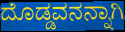
ದೊಡ್ಡವನನ್ನಾಗಿ